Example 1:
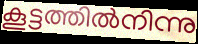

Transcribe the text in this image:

കൂട്ടത്തിൽനിന്നു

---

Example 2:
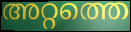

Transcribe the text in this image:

അറ്റത്തെ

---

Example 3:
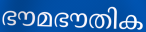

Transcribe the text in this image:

ഭൗമഭൗതിക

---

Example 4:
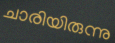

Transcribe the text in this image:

ചാരിയിരുന്നു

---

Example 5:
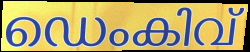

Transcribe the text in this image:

ഡെംകിവ്